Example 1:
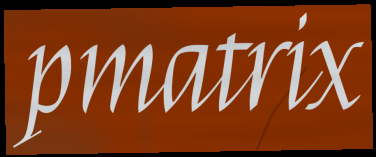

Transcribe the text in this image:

pmatrix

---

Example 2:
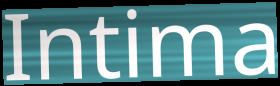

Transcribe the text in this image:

Intima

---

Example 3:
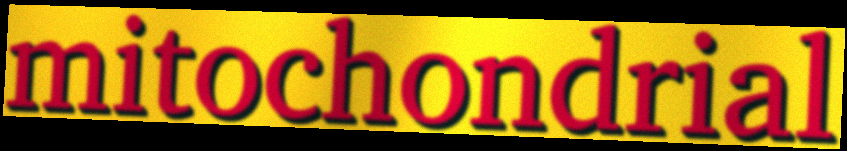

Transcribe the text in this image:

mitochondrial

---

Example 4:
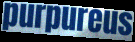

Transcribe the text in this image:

purpureus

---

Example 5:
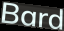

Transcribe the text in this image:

Bard